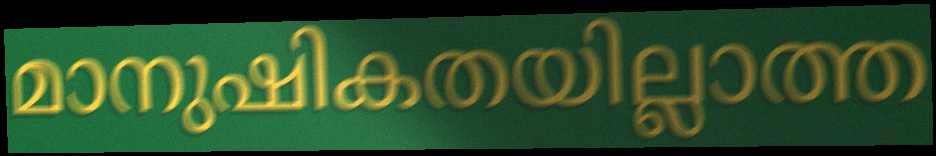
മാനുഷികതയില്ലാത്ത